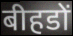
बीहडों